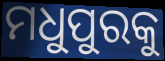
ମଧୁପୁରକୁ